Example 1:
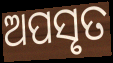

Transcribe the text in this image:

ଅପସୃତ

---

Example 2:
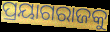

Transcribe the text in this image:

ପ୍ରୟାଗରାଜକୁ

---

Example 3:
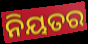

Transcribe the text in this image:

ନିୟତର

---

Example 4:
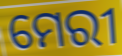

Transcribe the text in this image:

ମେରୀ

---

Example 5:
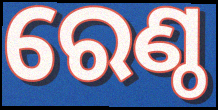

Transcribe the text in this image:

ରେଣ୍ଠ